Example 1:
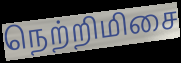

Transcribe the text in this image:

நெற்றிமிசை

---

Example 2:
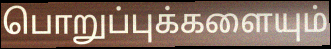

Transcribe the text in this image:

பொறுப்புக்களையும்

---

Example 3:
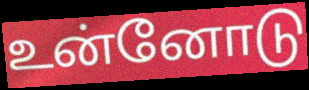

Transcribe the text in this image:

உன்னோடு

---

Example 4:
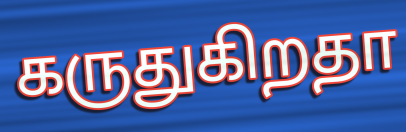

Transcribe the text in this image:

கருதுகிறதா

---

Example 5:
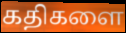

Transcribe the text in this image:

கதிகளை